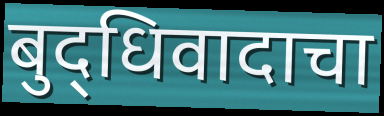
बुद्धिवादाचा